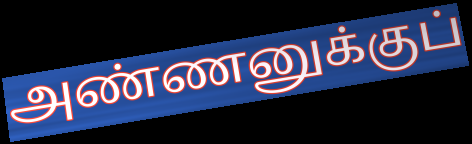
அண்ணனுக்குப்